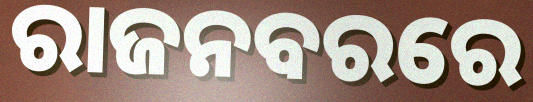
ରାଜନବରରେ